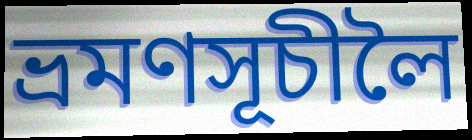
ভ্ৰমণসূচীলৈ